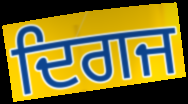
ਦਿਗਜ